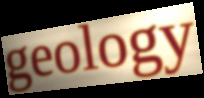
geology